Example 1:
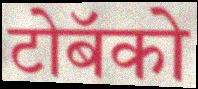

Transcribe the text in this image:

टोबॅको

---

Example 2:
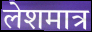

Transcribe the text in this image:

लेशमात्र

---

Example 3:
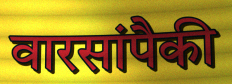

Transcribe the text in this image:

वारसांपैकी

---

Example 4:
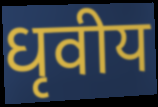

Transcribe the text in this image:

धृवीय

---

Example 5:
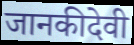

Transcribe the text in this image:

जानकीदेवी